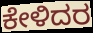
ಕೇಳಿದರ